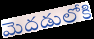
మెదడులోకి